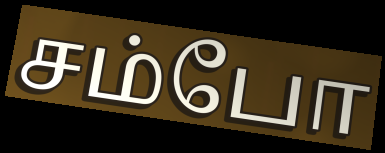
சம்போ